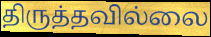
திருத்தவில்லை